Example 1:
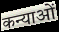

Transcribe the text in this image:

कन्‍याओं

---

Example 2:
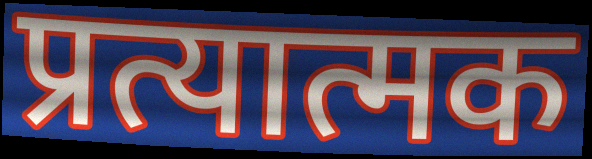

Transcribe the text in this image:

प्रत्यात्मक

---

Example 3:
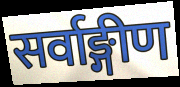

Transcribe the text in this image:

सर्वाङ्गीण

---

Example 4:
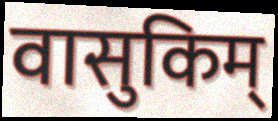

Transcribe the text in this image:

वासुकिम्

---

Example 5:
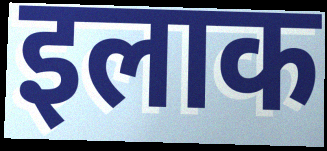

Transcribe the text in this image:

इलाक